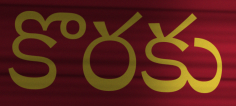
కొరకు